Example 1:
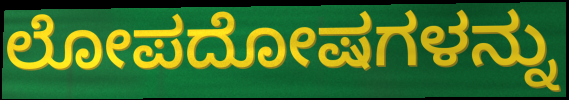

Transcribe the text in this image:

ಲೋಪದೋಷಗಳನ್ನು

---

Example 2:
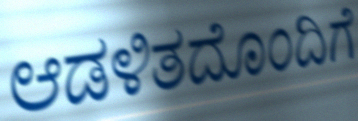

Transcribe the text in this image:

ಆಡಳಿತದೊಂದಿಗೆ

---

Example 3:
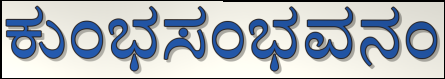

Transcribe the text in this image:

ಕುಂಭಸಂಭವನಂ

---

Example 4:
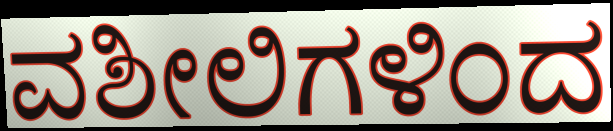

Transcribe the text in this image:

ವಶೀಲಿಗಳಿಂದ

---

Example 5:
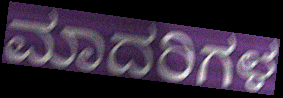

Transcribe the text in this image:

ಮಾದರಿಗಳ